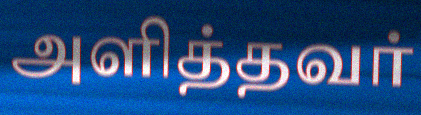
அளித்தவர்